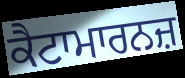
ਕੈਟਾਮਾਰਨਜ਼